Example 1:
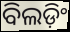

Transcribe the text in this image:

ବିଲଡ଼ିଂ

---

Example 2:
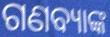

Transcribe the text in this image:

ଗଣବ୍ୟାଙ୍କ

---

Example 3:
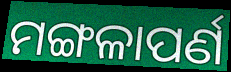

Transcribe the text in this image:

ମଙ୍ଗଳାପର୍ଣ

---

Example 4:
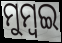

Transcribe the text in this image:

ମୁମ୍ବଇ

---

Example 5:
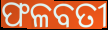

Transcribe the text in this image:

ଫଳବତୀ